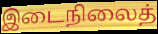
இடைநிலைத்